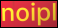
noipl